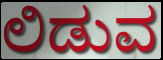
ಲಿಡುವ